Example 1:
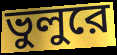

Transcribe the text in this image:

ভুলুরে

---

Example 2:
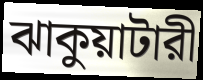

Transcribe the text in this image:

ঝাকুয়াটারী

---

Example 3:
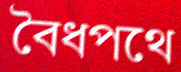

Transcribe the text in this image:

বৈধপথে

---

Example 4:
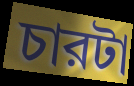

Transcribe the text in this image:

চারটা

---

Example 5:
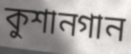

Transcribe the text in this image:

কুশানগান